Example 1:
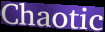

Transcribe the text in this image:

Chaotic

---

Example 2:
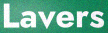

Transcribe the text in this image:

Lavers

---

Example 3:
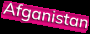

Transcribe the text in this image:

Afganistan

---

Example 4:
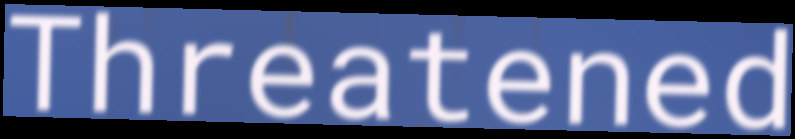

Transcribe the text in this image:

Threatened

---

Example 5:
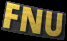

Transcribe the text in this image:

FNU